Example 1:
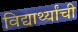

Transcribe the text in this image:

विद्यार्थ्यांची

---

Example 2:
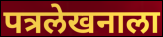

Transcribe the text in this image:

पत्रलेखनाला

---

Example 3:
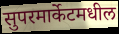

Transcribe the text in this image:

सुपरमार्केटमधील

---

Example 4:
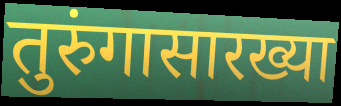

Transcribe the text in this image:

तुरुंगासारख्या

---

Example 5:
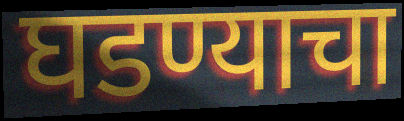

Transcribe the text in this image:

घडण्याचा